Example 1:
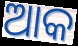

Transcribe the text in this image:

ଆକ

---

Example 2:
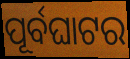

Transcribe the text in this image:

ପୂର୍ବଘାଟର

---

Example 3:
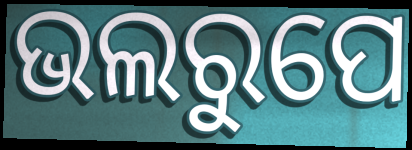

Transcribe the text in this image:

ଭଲରୁପେ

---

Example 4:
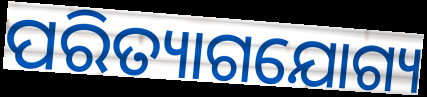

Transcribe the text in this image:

ପରିତ୍ୟାଗଯୋଗ୍ୟ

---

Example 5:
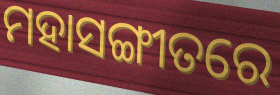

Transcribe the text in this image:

ମହାସଙ୍ଗୀତରେ